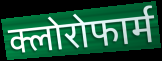
क्लोरोफार्म